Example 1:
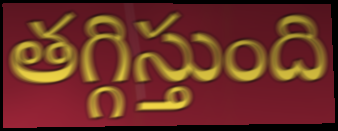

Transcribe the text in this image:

తగ్గిస్తుంది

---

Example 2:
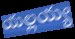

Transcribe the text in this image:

యల్లయ్య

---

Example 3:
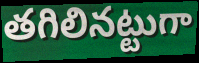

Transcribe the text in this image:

తగిలినట్టుగా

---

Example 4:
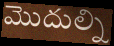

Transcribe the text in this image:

మొదుల్ని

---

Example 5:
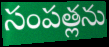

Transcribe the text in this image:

సంపత్లను